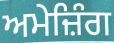
ਅਮੇਜ਼ਿੰਗ